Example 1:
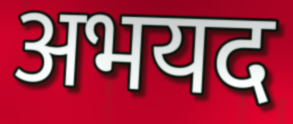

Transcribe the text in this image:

अभयद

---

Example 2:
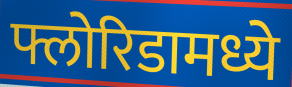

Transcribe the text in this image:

फ्लोरिडामध्ये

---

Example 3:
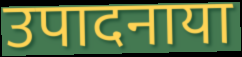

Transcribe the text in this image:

उपादनाया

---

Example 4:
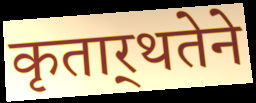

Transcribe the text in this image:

कृतार्थतेने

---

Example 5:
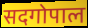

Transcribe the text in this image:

सदगोपाल